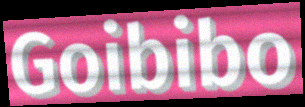
Goibibo